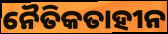
ନୈତିକତାହୀନ